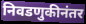
निवडणुकीनंतर